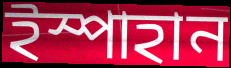
ইস্পাহান